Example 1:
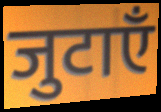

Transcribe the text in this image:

जुटाएँ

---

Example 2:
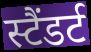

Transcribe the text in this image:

स्टैंडर्ट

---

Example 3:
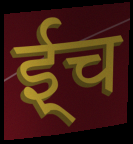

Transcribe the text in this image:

ई्च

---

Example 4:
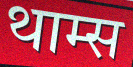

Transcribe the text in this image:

थाम्स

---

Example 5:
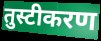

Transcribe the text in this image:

तुस्टीकरण